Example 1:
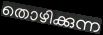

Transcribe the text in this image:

തൊഴിക്കുന്ന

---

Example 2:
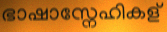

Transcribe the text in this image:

ഭാഷാസ്നേഹികള്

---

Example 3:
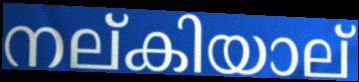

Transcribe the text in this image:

നല്കിയാല്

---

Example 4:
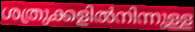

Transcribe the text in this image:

ശത്രുക്കളിൽനിന്നുള്ള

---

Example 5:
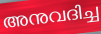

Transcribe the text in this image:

അനുവദിച്ച